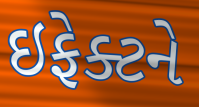
ઇફેક્ટને